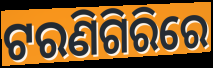
ଟରଣିଗିରିରେ